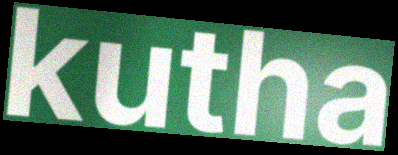
kutha